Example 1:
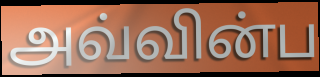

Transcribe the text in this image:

அவ்வின்ப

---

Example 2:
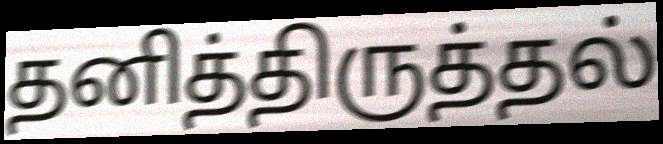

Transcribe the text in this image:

தனித்திருத்தல்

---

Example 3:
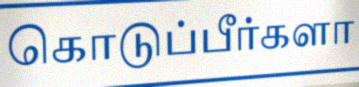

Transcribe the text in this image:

கொடுப்பீர்களா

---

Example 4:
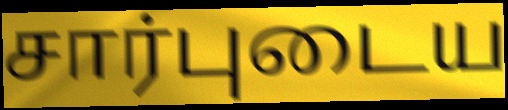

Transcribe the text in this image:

சார்புடைய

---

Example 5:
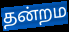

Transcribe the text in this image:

தன்றம